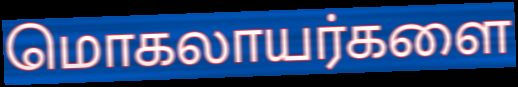
மொகலாயர்களை